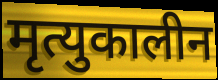
मृत्युकालीन